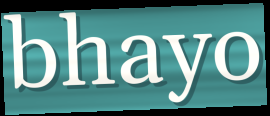
bhayo